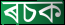
ৰচক